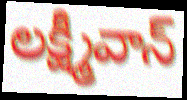
లక్ష్మీవాన్